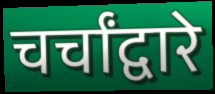
चर्चांद्वारे